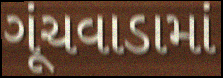
ગૂંચવાડામાં